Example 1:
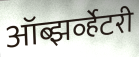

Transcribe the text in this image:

ऑब्झर्व्हेटरी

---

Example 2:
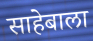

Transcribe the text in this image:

साहेबाला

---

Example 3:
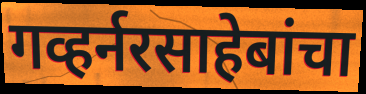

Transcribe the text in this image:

गव्हर्नरसाहेबांचा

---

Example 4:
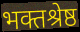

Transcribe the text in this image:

भक्तश्रेष्ठ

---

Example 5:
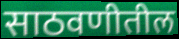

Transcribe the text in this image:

साठवणीतील